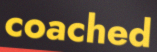
coached